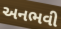
અનભવી